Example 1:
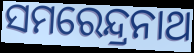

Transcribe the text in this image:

ସମରେନ୍ଦ୍ରନାଥ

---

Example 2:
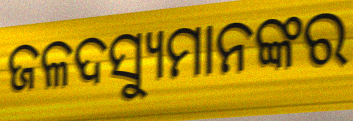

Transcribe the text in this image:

ଜଳଦସ୍ୟୁମାନଙ୍କର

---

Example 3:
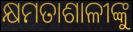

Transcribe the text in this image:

କ୍ଷମତାଶାଳୀଙ୍କୁ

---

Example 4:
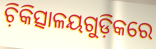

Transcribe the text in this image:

ଚ଼ିକିତ୍ସାଳୟଗୁଡ଼ିକରେ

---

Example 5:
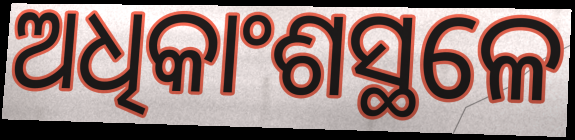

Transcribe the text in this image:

ଅଧିକାଂଶସ୍ଥଳେ